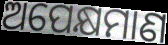
ଅପେକ୍ଷମାଣ